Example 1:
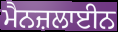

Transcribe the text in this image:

ਮੈਨਜ਼ਲਾਈਨ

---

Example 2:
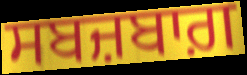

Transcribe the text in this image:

ਸਬਜ਼ਬਾਗ਼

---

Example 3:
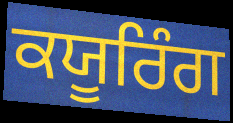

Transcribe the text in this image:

ਕਯੂਰਿੰਗ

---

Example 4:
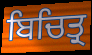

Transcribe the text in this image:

ਬਿਚਿਤ੍ਰ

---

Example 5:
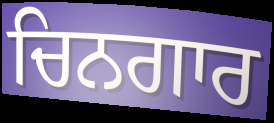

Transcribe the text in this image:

ਚਿਨਗਾਰ